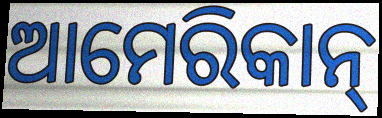
ଆମେରିକାନ୍